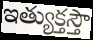
ఇత్యుక్తస్తౌ